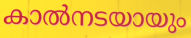
കാൽനടയായും